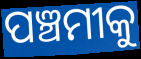
ପଞ୍ଚମୀକୁ